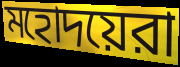
মহোদয়েরা